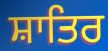
ਸ਼ਾਤਿਰ